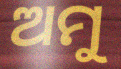
ଅମୁ